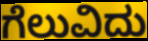
ಗೆಲುವಿದು